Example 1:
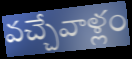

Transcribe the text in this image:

వచ్చేవాళ్లం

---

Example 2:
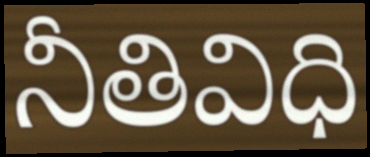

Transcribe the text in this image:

నీతివిధి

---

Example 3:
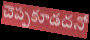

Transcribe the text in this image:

చెప్పకూడదనో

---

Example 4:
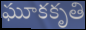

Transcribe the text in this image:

ఘూకకృతి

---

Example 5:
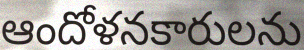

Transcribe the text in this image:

ఆందోళనకారులను